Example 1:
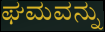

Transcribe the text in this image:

ಘಮವನ್ನು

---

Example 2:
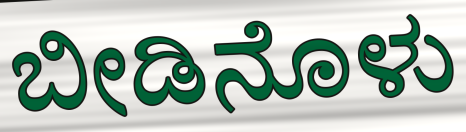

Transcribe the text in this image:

ಬೀಡಿನೊಳು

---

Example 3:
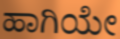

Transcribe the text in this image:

ಹಾಗಿಯೇ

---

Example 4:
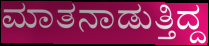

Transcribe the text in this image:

ಮಾತನಾಡುತ್ತಿದ್ದ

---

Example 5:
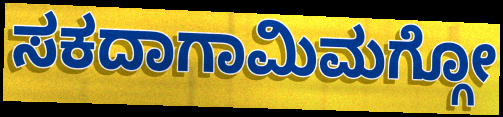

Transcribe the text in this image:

ಸಕದಾಗಾಮಿಮಗ್ಗೋ